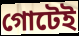
গোটেই